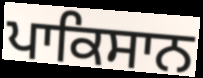
ਪਾਕਿਸਾਨ